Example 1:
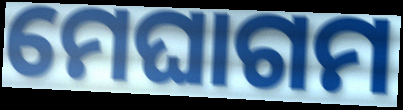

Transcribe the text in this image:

ମେଘାଗମ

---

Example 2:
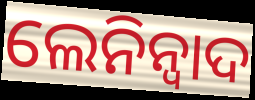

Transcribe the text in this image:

ଲେନିନ୍ବାଦ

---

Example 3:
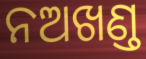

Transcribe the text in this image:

ନଅଖଣ୍ଡ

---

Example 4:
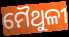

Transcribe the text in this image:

ମୈଥୁଳୀ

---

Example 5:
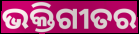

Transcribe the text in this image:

ଭକ୍ତିଗୀତର